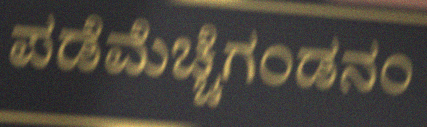
ಪಡೆಮೆಚ್ಚೆಗಂಡನಂ